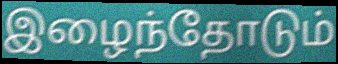
இழைந்தோடும்